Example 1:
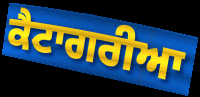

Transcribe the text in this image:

ਕੈਟਾਗਰੀਆ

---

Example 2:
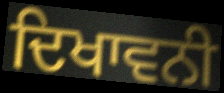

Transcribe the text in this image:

ਦਿਖਾਵਨੀ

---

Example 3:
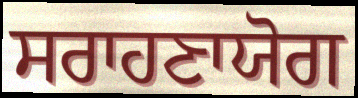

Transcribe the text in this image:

ਸਰਾਹਣਾਯੋਗ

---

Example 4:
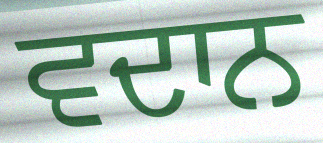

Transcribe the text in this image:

ਵਦਾਨ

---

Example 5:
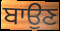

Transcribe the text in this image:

ਬਾਉਣ